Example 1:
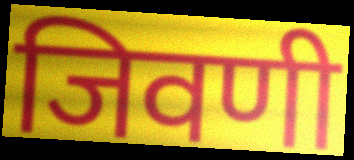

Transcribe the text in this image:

जिवणी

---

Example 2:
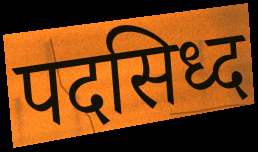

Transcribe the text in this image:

पदसिध्द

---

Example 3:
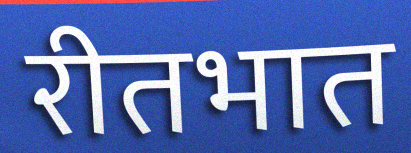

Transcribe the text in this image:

रीतभात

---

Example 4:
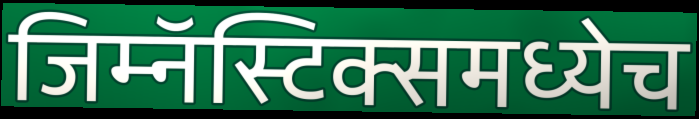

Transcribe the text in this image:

जिम्नॅस्टिक्समध्येच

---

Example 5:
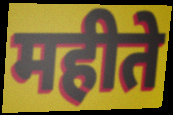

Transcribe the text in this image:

महीते